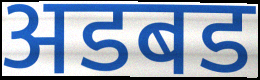
अडबड